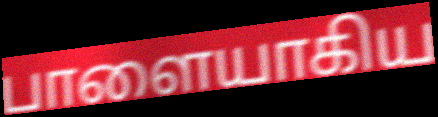
பாளையாகிய